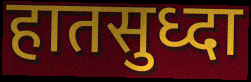
हातसुध्दा